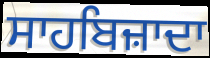
ਸਾਹਬਿਜ਼ਾਦਾ